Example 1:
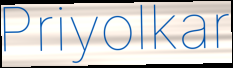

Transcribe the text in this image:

Priyolkar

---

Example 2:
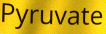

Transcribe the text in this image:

Pyruvate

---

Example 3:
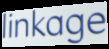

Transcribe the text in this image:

linkage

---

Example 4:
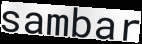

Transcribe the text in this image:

sambar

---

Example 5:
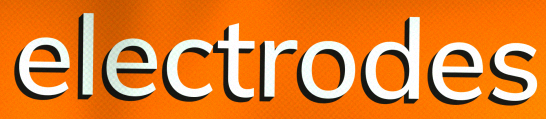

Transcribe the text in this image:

electrodes